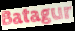
Batagur